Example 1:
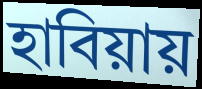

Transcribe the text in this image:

হাবিয়ায়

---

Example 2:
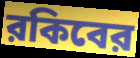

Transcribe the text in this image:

রকিবের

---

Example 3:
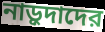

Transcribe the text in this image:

নাড়ুদাদের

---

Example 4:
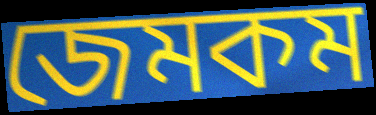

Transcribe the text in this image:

জেমকম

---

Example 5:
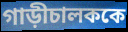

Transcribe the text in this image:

গাড়ীচালককে